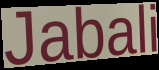
Jabali